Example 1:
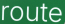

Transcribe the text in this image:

route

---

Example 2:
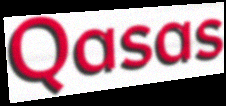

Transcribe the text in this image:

Qasas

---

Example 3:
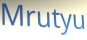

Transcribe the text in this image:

Mrutyu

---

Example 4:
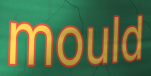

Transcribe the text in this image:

mould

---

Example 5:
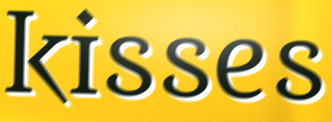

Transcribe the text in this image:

kisses